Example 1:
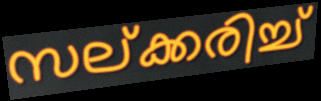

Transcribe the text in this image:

സല്ക്കരിച്ച്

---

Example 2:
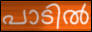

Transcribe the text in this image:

പാടിൽ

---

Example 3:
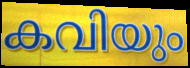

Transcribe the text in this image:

കവിയും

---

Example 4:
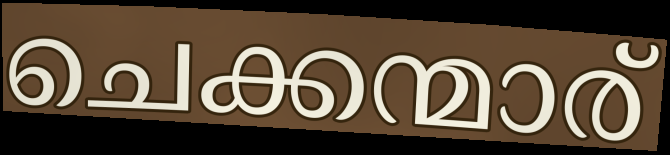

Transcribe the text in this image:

ചെക്കന്മാര്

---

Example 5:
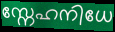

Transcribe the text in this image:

സ്നേഹനിധേ